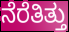
ನೆರೆತಿತ್ತು